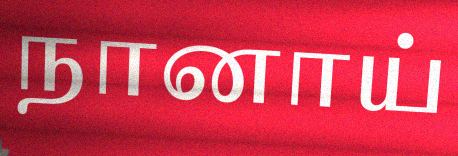
நானாய்